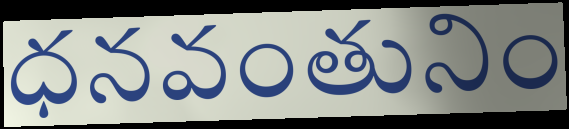
ధనవంతునిం